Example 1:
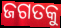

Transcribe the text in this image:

ଜଗତକୁ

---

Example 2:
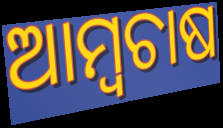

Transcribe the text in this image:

ଆମ୍ୱଚାଷ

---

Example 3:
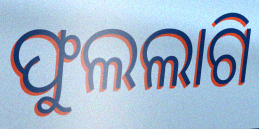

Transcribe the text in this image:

ଫୁଲଲାଗି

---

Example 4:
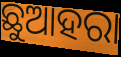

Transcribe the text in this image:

ଛୁଆହରା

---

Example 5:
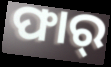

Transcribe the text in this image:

ଫାର୍